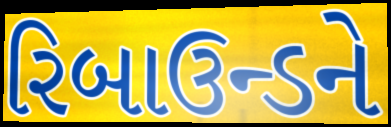
રિબાઉન્ડને